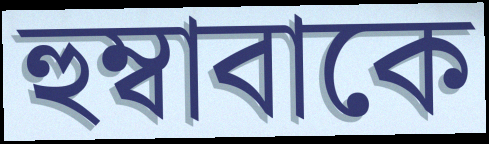
হুম্বাবাকে